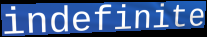
indefinite